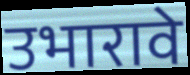
उभारावे